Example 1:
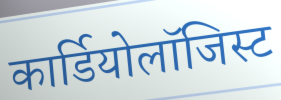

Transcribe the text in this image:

कार्डियोलॉजिस्ट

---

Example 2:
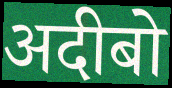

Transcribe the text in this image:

अदीबो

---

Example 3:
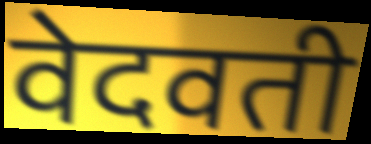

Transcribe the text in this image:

वेदवती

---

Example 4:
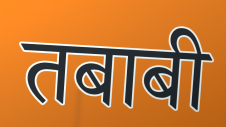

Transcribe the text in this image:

तबाबी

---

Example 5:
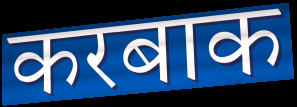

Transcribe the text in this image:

करबाक